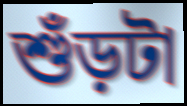
শুঁড়টা